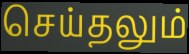
செய்தலும்